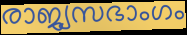
രാജ്യസഭാംഗം